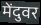
मेंदुवर